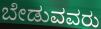
ಬೇಡುವವರು